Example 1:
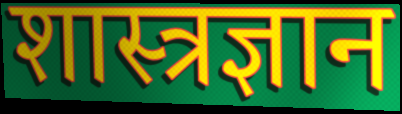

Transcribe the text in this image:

शास्त्रज्ञान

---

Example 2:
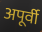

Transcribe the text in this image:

अपूर्वी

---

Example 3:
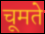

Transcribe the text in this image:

चूमते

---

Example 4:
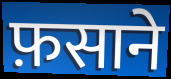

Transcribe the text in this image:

फ़साने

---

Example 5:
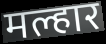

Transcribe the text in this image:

मल्हार